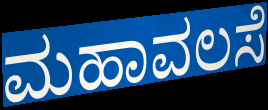
ಮಹಾವಲಸೆ